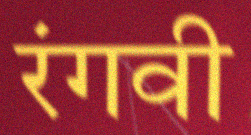
रंगवी